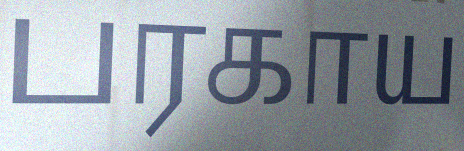
பரகாய